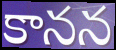
కానన